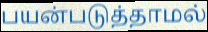
பயன்படுத்தாமல்